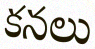
కనలు